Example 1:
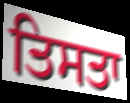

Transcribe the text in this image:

ਤਿਸਤਾ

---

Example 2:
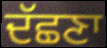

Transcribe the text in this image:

ਦੱਛਣਾ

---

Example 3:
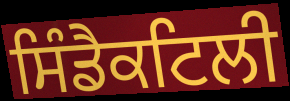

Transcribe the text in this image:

ਸਿੰਡੈਕਟਿਲੀ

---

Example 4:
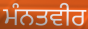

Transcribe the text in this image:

ਮੰਨਤਵੀਰ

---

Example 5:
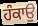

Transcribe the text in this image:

ਹੰਕਾਉ